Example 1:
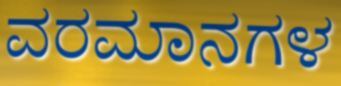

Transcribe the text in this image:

ವರಮಾನಗಳ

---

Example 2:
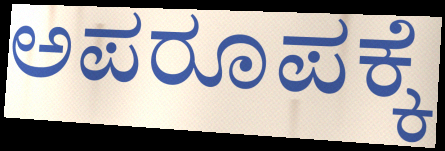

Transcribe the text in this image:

ಅಪರೂಪಕ್ಕೆ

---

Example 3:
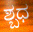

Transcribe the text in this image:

ಶ್ಬಧ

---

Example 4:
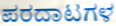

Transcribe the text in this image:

ಪರದಾಟಗಳ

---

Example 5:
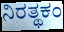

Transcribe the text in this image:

ನಿರತ್ಥಕಂ